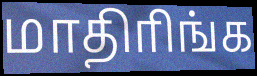
மாதிரிங்க